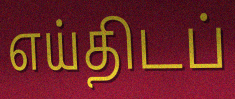
எய்திடப்